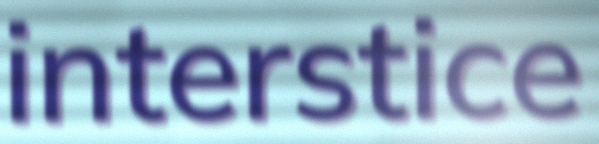
interstice